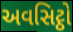
અવસિટ્ઠો